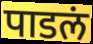
पाडलं